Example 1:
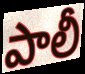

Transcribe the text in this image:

పాలీ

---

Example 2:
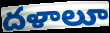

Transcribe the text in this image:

దళాలూ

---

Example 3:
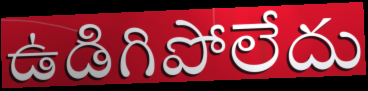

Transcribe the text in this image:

ఉడిగిపోలేదు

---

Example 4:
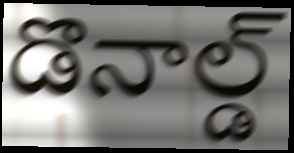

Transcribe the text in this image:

డొనాల్డ్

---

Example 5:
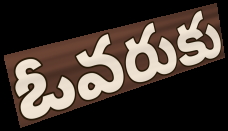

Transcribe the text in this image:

ఓవరుకు